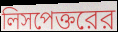
লিসপেক্তরের